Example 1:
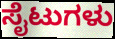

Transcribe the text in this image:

ಸೈಟುಗಳು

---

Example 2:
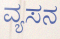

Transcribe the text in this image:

ವ್ಯಸನ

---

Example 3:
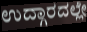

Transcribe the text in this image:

ಉದ್ಗಾರದಲ್ಲೇ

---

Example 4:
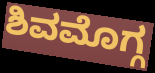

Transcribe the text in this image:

ಶಿವಮೊಗ್ಗ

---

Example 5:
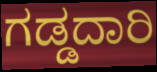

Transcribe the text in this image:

ಗಡ್ಡದಾರಿ